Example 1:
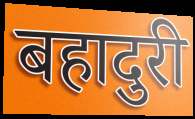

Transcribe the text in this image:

बहादुरी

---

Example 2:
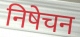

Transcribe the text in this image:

निषेचन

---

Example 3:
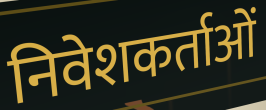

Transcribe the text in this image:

निवेशकर्ताओं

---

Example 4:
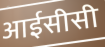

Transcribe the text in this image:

आईसीसी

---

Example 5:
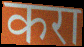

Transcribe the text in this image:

करा